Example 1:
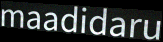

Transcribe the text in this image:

maadidaru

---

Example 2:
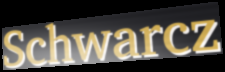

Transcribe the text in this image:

Schwarcz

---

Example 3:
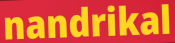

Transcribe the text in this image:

nandrikal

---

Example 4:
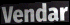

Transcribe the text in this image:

Vendar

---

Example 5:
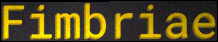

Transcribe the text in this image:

Fimbriae